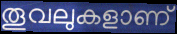
തൂവലുകളാണ്